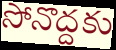
సోనొద్దకు